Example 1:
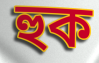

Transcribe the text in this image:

হুক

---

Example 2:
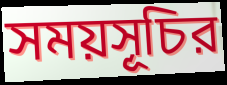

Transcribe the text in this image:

সময়সূচির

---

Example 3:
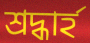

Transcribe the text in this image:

শ্রদ্ধার্হ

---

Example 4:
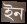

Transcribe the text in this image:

ইন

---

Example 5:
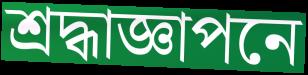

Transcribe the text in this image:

শ্রদ্ধাজ্ঞাপনে